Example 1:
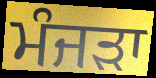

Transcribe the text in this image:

ਮੰਜੜਾ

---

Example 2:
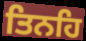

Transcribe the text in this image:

ਤਿਨਹਿ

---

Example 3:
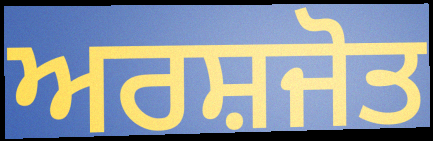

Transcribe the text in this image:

ਅਰਸ਼ਜੋਤ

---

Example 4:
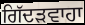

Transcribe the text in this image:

ਗਿੱਦੜਵਾਹਾ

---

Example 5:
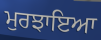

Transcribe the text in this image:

ਮੁਰਝਾਇਆ